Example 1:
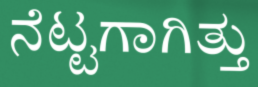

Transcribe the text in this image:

ನೆಟ್ಟಗಾಗಿತ್ತು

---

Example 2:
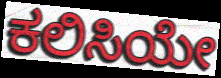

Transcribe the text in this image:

ಕಲಿಸಿಯೇ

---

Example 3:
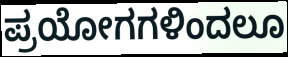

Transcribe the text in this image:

ಪ್ರಯೋಗಗಳಿಂದಲೂ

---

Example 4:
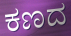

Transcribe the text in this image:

ಕಣದ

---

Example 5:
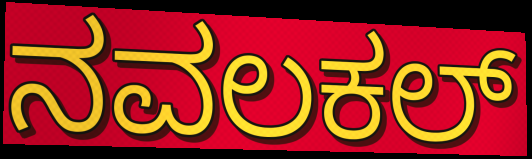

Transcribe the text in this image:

ನವಲಕಲ್